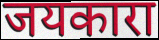
जयकारा